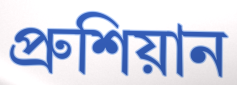
প্রুশিয়ান